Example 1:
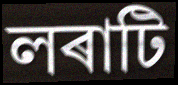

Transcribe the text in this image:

লৰাটি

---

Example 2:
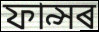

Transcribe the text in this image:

ফান্সৰ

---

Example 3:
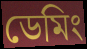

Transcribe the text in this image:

ডেমিং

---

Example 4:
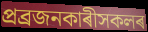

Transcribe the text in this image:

প্ৰব্ৰজনকাৰীসকলৰ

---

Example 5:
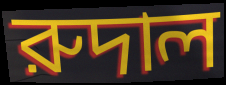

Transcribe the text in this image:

ৰুদাল